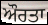
ਔਰਤਾ